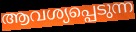
ആവശ്യപ്പെടുന്ന